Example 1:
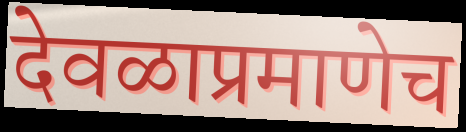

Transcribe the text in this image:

देवळाप्रमाणेच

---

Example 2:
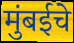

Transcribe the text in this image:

मुंबईचे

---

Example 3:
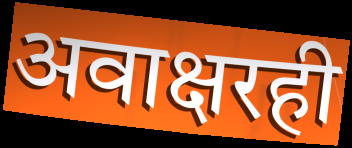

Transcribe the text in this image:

अवाक्षरही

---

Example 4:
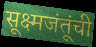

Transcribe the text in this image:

सूक्ष्मजंतूंची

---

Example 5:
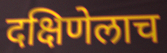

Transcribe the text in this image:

दक्षिणेलाच